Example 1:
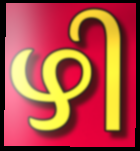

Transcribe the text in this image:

ഴി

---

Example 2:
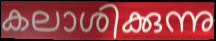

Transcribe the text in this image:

കലാശിക്കുന്നു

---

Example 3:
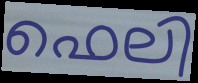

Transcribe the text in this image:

ഫെലി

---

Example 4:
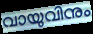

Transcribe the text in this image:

വായുവിനും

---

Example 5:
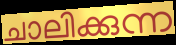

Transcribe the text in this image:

ചാലിക്കുന്ന